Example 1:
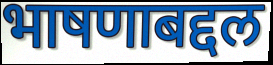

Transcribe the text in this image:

भाषणाबद्दल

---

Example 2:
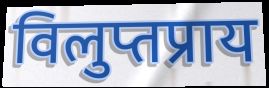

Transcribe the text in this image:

विलुप्तप्राय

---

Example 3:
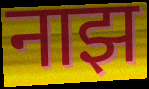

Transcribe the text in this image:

नाझ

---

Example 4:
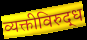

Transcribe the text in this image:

व्यक्तीविरुद्ध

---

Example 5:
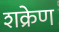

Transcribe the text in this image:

शक्रेण